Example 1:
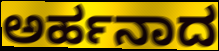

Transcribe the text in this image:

ಅರ್ಹನಾದ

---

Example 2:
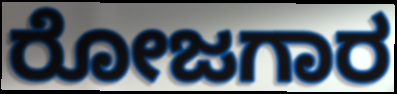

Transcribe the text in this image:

ರೋಜಗಾರ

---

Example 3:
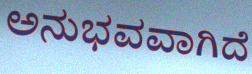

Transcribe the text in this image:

ಅನುಭವವಾಗಿದೆ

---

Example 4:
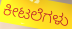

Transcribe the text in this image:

ಕೀಟಲೆಗಳು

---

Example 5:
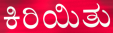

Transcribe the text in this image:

ಕಿರಿಯಿತು